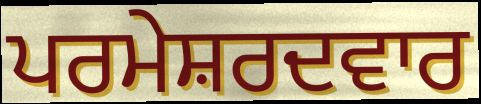
ਪਰਮੇਸ਼ਰਦਵਾਰ